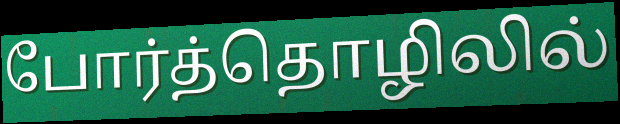
போர்த்தொழிலில்